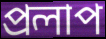
প্রলাপ